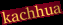
kachhua